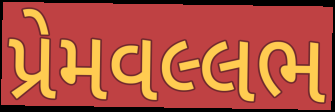
પ્રેમવલ્લભ